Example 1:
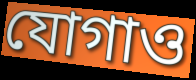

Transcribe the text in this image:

যোগাও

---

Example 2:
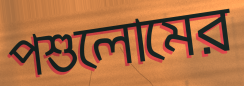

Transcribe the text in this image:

পশুলোমের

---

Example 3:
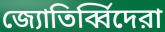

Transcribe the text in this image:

জ্যোতির্ব্বিদেরা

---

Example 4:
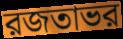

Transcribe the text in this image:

রজতাভর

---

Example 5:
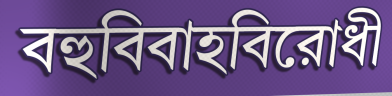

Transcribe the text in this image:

বহুবিবাহবিরোধী